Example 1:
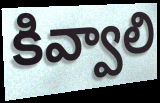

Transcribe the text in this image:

కివ్వాలి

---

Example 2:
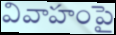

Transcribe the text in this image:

వివాహంపై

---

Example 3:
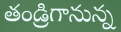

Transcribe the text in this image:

తండ్రిగానున్న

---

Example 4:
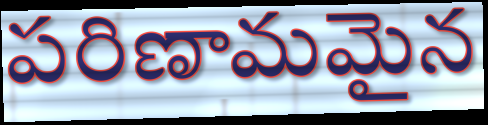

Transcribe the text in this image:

పరిణామమైన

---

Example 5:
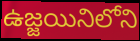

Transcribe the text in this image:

ఉజ్జయినిలోని